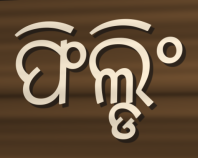
ଫିଲ୍ଡିଂ